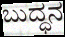
ಬುದ್ಧನ